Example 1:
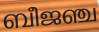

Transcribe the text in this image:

ബീജഞ്ച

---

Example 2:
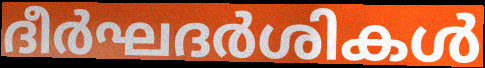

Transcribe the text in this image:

ദീർഘദർശികൾ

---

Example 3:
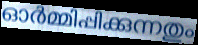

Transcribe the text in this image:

ഓർമ്മിപ്പിക്കുന്നതും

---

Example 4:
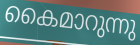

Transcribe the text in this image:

കൈമാറുന്നു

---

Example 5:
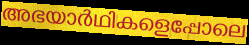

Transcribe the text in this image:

അഭയാർഥികളെപ്പോലെ